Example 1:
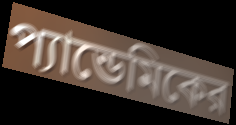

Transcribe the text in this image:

প্যান্ডেমিকের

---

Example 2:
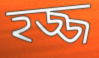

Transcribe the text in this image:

হজ্জ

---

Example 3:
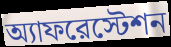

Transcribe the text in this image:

অ্যাফরেস্টেশন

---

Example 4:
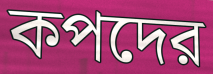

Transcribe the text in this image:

কপদের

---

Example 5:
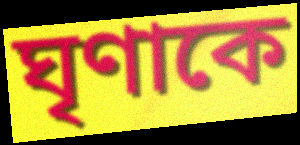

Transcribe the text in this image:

ঘৃণাকে